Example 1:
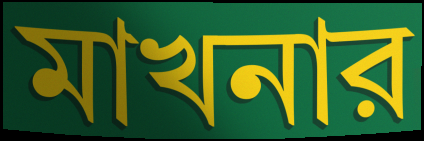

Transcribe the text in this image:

মাখনার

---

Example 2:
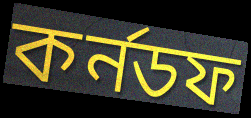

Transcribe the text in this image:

কর্নডফ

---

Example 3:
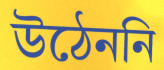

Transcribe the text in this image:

উঠেননি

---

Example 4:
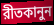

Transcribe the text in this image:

রীতকানুন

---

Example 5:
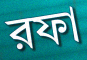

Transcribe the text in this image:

রফা